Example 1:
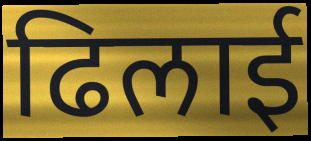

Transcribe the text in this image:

ढिलाई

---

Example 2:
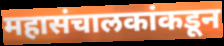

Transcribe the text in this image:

महासंचालकांकडून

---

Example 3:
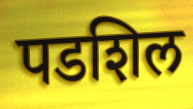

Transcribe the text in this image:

पडशिल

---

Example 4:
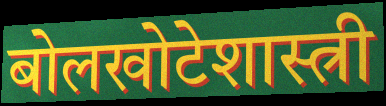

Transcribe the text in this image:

बोलखोटेशास्त्री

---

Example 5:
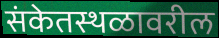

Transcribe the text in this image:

संकेतस्थळावरील